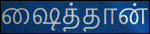
ஷைத்தான்